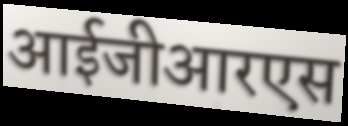
आईजीआरएस